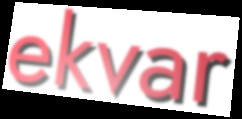
ekvar